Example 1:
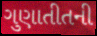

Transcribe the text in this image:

ગુણાતીતની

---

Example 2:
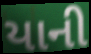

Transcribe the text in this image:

યાની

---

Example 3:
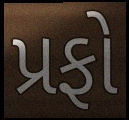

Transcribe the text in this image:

પ્રફો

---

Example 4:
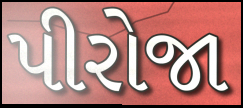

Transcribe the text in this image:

પીરોજા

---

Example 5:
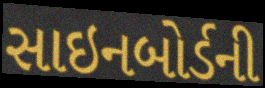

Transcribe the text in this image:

સાઇનબોર્ડની